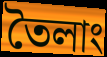
তৈলাং